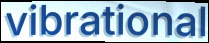
vibrational